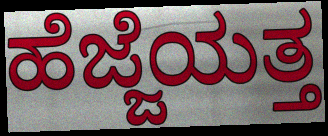
ಹೆಜ್ಜೆಯತ್ತ